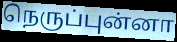
நெருப்புன்னா